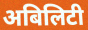
अबिलिटी